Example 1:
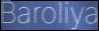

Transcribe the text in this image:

Baroliya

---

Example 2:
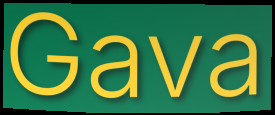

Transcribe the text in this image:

Gava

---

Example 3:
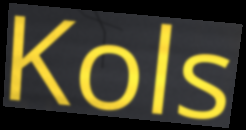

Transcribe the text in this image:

Kols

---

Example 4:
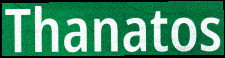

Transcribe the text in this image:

Thanatos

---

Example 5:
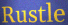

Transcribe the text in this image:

Rustle